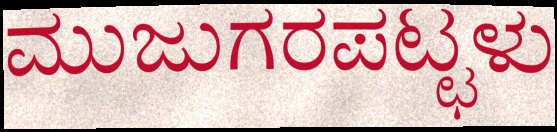
ಮುಜುಗರಪಟ್ಟಳು